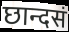
छान्दसं